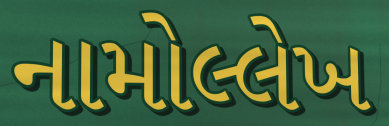
નામોલ્લેખ